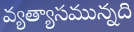
వ్యత్యాసమున్నది